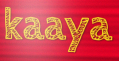
kaaya